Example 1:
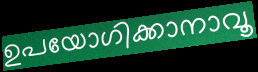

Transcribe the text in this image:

ഉപയോഗിക്കാനാവൂ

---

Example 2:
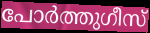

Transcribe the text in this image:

പോർത്തുഗീസ്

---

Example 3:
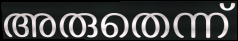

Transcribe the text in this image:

അരുതെന്ന്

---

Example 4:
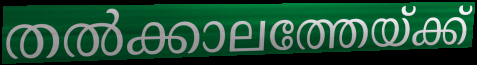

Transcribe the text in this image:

തൽക്കാലത്തേയ്ക്ക്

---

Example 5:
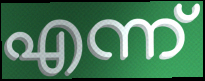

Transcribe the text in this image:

എന്ന്